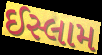
ઈસ્લામ